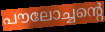
പൗലോച്ചന്റെ